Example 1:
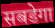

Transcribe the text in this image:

सबडेगा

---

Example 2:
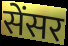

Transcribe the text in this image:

सेंसर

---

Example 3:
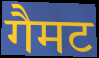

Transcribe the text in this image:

गैमट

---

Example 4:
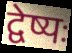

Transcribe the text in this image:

द्वेष्यः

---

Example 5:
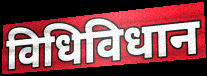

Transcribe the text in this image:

विधिविधान